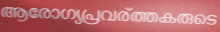
ആരോഗ്യപ്രവര്ത്തകരുടെ